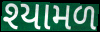
શ્યામળ